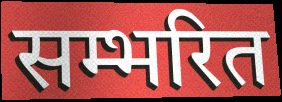
सम्भरित